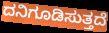
ದನಿಗೂಡಿಸುತ್ತದೆ